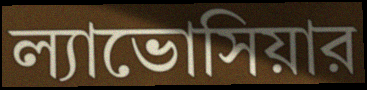
ল্যাভোসিয়ার